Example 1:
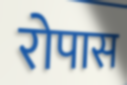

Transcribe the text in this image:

रोपास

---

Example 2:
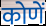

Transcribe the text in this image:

कोणें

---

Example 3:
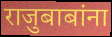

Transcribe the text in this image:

राजुबाबांना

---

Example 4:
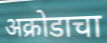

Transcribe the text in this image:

अक्रोडाचा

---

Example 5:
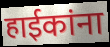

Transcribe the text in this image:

हाईकांना